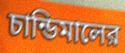
চান্ডিমালের